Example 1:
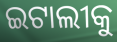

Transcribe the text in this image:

ଇଟାଲୀକୁ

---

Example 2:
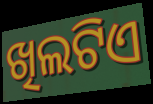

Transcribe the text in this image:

ଖିଲଟିଏ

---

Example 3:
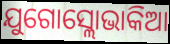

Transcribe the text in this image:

ଯୁଗୋସ୍ଲୋଭାକିଆ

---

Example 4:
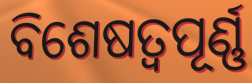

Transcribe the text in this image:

ବିଶେଷତ୍ୱପୂର୍ଣ୍ଣ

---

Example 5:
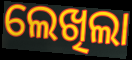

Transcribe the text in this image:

ଲେଖିଲା